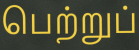
பெற்றுப்